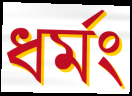
ধর্মং